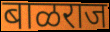
बाळराज